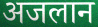
अजलान